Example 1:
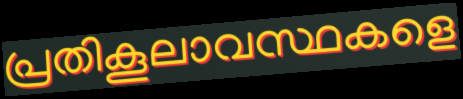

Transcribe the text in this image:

പ്രതികൂലാവസ്ഥകളെ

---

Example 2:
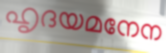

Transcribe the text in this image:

ഹൃദയമനേന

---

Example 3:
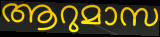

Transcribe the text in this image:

ആറുമാസ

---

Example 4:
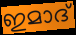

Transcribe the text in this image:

ഇമാദ്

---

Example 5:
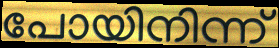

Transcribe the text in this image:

പോയിനിന്ന്